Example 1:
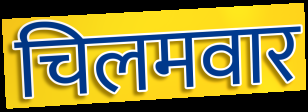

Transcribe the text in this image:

चिलमवार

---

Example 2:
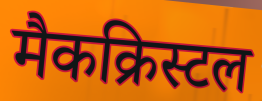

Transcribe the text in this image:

मैकक्रिस्टल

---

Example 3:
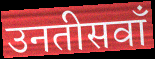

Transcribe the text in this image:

उनतीसवाँ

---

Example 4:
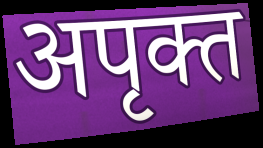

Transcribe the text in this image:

अपृक्त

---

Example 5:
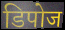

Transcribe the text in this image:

डिपोज